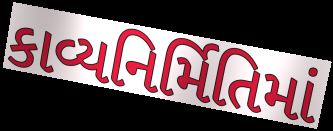
કાવ્યનિર્મિતિમાં